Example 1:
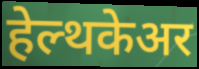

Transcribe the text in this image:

हेल्थकेअर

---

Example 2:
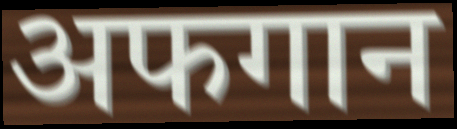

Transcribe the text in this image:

अफगान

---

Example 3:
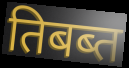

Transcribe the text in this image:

तिबब्त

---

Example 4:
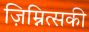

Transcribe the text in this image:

ज़िम्नित्सकी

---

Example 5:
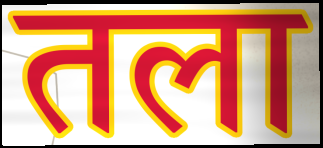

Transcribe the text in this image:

तला